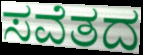
ಸವೆತದ